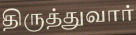
திருத்துவார்